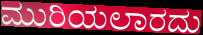
ಮುರಿಯಲಾರದು